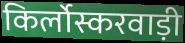
किर्लोस्करवाड़ी